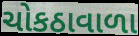
ચોકઠાવાળા